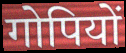
गोपियों